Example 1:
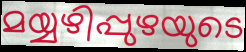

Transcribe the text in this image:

മയ്യഴിപ്പുഴയുടെ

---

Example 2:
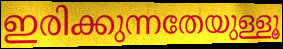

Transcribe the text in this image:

ഇരിക്കുന്നതേയുള്ളൂ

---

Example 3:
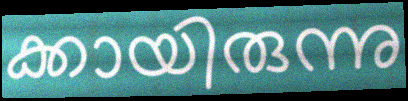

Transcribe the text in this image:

ക്കായിരുന്നു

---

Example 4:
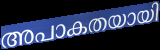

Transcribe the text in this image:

അപാകതയായി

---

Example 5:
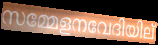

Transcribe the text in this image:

സമ്മേളനവേദിയില്